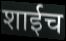
शाईच